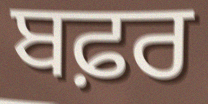
ਬਫ਼ਰ